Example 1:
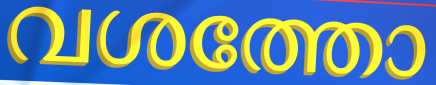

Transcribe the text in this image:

വശത്തോ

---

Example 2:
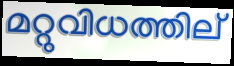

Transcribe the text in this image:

മറ്റുവിധത്തില്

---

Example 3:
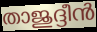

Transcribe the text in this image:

താജുദ്ദീൻ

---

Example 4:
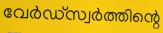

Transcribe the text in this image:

വേർഡ്സ്വർത്തിന്റെ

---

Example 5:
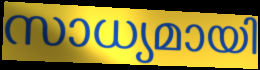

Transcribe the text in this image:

സാധ്യമായി